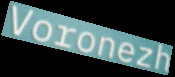
Voronezh